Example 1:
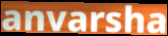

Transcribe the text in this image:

anvarsha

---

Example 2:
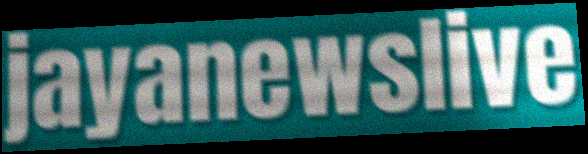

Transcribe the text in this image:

jayanewslive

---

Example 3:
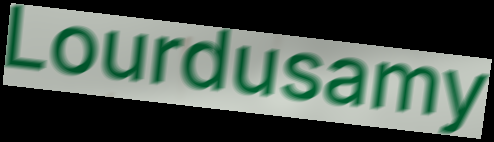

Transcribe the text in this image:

Lourdusamy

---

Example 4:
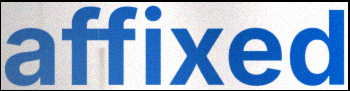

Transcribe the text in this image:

affixed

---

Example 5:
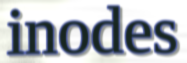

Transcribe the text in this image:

inodes